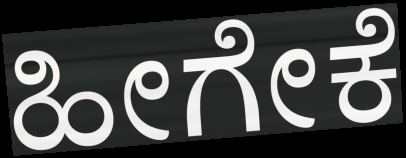
ಹೀಗೇಕೆ